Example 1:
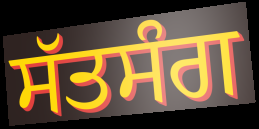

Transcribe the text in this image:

ਸੱਤਸੰਗ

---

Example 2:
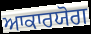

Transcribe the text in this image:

ਆਕਾਰਯੋਗ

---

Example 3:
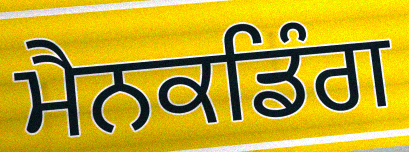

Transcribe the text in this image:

ਮੈਨਕਡਿੰਗ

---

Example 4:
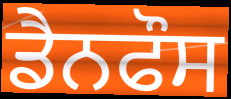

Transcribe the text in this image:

ਡੈਨਫੌਸ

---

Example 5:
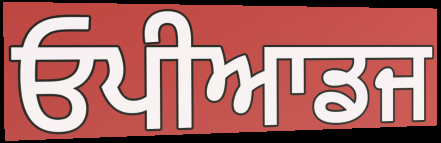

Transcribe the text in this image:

ਓਪੀਆਡਜ